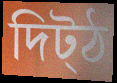
দিট্ঠ